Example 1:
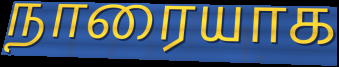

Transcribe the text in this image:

நாரையாக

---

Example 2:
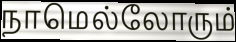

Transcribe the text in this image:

நாமெல்லோரும்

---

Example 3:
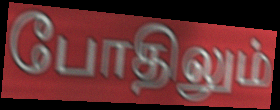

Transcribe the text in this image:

போதிலும்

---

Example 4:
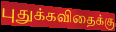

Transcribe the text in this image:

புதுக்கவிதைக்கு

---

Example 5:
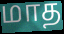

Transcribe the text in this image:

மாத